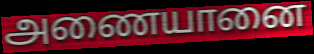
அணையானை